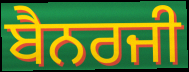
ਬੈਨਰਜੀ